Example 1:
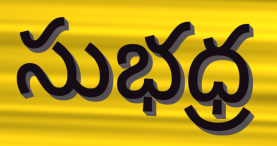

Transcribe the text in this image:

సుభధ్ర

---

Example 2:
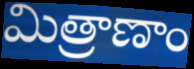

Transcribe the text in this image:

మిత్రాణాం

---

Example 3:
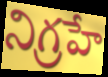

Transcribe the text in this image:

నిగ్రహే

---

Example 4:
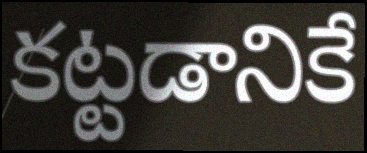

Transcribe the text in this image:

కట్టడానికే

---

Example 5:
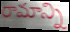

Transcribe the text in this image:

రామాన్ని